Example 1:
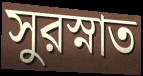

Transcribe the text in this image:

সুরস্নাত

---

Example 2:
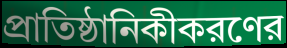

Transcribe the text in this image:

প্রাতিষ্ঠানিকীকরণের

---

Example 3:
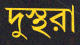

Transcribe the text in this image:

দুস্থরা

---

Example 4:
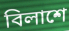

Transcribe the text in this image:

বিলাশে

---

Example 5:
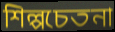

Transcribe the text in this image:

শিল্পচেতনা